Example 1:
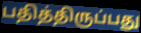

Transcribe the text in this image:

பதித்திருப்பது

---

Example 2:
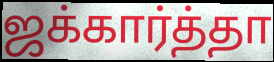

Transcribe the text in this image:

ஜக்கார்த்தா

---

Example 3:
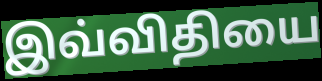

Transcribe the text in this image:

இவ்விதியை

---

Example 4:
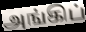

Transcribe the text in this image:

அங்கிப்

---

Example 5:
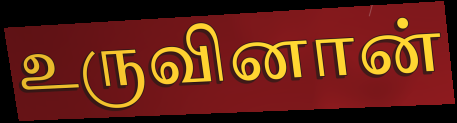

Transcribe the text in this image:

உருவினான்